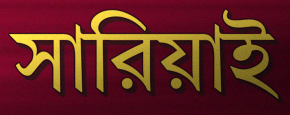
সারিয়াই